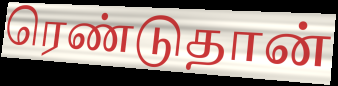
ரெண்டுதான்